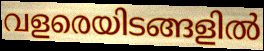
വളരെയിടങ്ങളിൽ